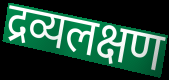
द्रव्यलक्षण